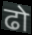
ढो